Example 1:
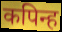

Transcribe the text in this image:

कपिन्ह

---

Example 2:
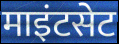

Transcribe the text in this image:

माइंटसेट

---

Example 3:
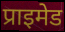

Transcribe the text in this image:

प्राइमेड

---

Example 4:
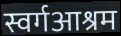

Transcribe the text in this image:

स्वर्गआश्रम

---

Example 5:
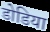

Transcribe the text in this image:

डोडिया